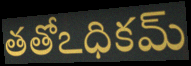
తతోఽధికమ్